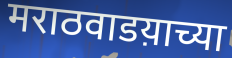
मराठवाडय़ाच्या